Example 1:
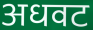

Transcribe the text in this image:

अधवट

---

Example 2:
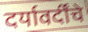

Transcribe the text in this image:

दर्यावर्दींचे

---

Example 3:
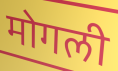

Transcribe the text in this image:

मोगली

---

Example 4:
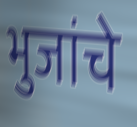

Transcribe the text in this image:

भुजांचे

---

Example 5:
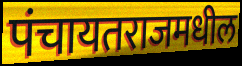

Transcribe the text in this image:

पंचायतराजमधील